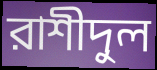
রাশীদুল